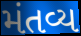
મંતવ્ય